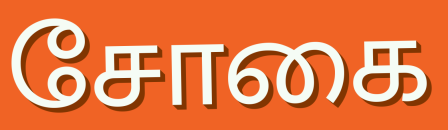
சோகை